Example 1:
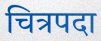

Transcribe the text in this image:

चित्रपदा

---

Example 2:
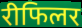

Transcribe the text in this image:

रीफिलर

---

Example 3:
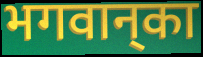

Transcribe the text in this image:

भगवान्‌का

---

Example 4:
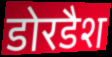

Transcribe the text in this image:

डोरडैश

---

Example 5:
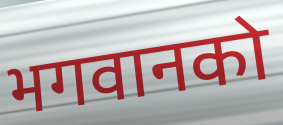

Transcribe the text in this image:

भगवानको